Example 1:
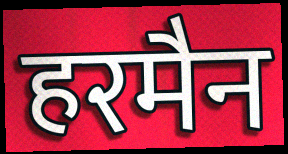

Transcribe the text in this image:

हरमैन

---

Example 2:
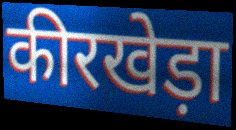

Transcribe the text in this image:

कीरखेड़ा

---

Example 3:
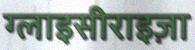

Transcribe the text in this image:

ग्लाइसीराइज़ा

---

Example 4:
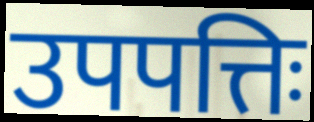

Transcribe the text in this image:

उपपत्तिः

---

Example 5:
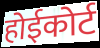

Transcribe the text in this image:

होईकोर्ट